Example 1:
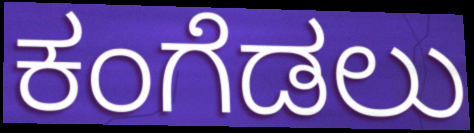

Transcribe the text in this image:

ಕಂಗೆಡಲು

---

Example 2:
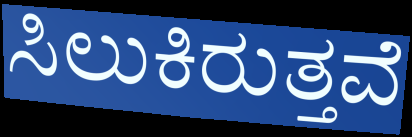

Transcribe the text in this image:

ಸಿಲುಕಿರುತ್ತವೆ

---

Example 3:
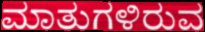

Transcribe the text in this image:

ಮಾತುಗಳಿರುವ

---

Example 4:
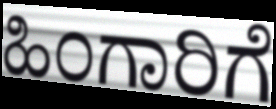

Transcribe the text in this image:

ಹಿಂಗಾರಿಗೆ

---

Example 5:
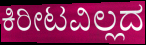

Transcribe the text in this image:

ಕಿರೀಟವಿಲ್ಲದ